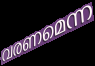
വരണമെന്ന